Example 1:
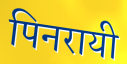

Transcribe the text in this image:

पिनरायी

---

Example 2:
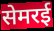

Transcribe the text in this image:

सेमरई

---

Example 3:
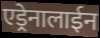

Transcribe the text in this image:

एड्रेनालाईन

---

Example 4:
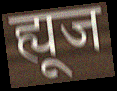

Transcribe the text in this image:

ह्यूज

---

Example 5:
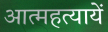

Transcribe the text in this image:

आत्महत्यायें